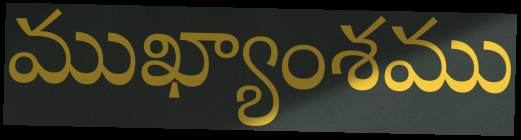
ముఖ్యాంశము